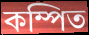
কম্পিত